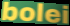
bolei